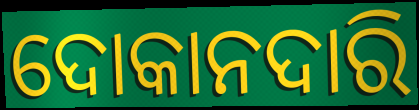
ଦୋକାନଦାରି